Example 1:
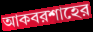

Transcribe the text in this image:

আকবরশাহের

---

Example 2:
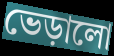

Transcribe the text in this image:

ভেড়ালো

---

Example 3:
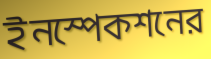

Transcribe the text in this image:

ইনস্পেকশনের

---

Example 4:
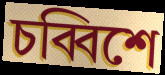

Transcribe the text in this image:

চব্বিশে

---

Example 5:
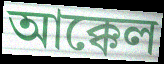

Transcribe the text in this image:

আক্কেল